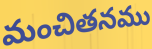
మంచితనము